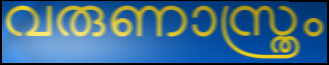
വരുണാസ്ത്രം